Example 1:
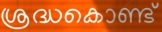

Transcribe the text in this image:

ശ്രദ്ധകൊണ്ട്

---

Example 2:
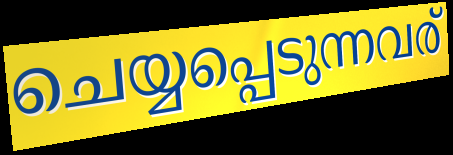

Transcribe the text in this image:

ചെയ്യപ്പെടുന്നവര്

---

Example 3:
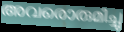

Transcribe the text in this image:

അവരൊരുമിച്ചു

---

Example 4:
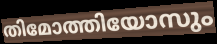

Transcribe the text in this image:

തിമോത്തിയോസും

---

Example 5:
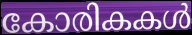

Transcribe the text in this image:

കോരികകൾ